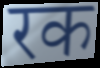
रक